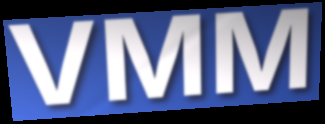
VMM